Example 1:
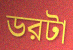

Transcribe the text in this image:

ডরটা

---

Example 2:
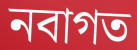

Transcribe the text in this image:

নবাগত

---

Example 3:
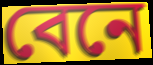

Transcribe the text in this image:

বেনে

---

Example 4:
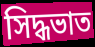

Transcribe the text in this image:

সিদ্ধভাত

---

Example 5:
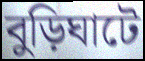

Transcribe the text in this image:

বুড়িঘাটে